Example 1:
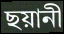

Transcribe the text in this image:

ছয়ানী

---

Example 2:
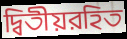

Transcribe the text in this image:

দ্বিতীয়রহিত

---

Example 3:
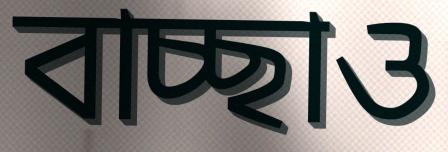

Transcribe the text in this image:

বাচ্ছাও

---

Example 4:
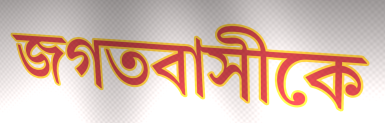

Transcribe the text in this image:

জগতবাসীকে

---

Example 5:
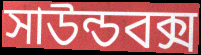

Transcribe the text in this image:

সাউন্ডবক্স